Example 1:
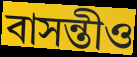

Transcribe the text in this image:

বাসন্তীও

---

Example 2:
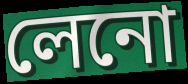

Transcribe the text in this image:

লেনো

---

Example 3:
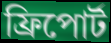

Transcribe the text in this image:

ফ্রিপোর্ট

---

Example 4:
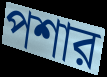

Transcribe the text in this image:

পশার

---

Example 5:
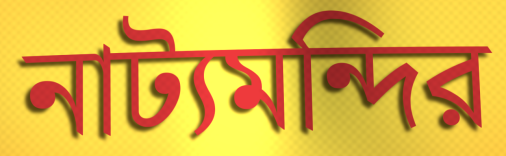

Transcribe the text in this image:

নাট্যমন্দির